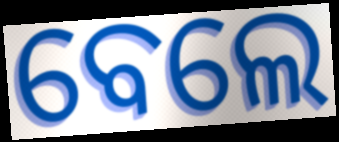
ବେଲେ